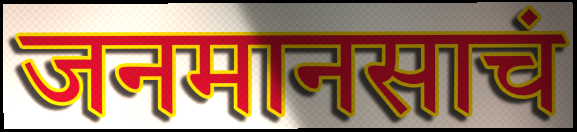
जनमानसाचं